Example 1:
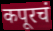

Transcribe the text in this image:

कपूरचं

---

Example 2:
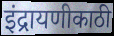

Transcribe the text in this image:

इंद्रायणीकाठी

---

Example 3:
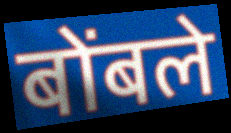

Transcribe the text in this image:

बोंबले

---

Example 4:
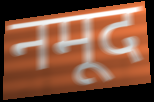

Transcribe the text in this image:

नमूद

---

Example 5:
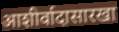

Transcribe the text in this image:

आशीर्वादासारखा